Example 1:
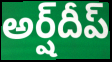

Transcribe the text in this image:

అర్ష్‌దీప్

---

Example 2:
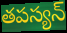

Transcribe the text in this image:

తపస్యన్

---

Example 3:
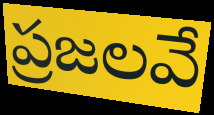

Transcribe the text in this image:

ప్రజలవే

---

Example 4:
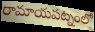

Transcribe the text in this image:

రామాయపట్నంలో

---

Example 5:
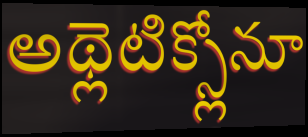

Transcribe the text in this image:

అథ్లెటిక్స్లోనూ